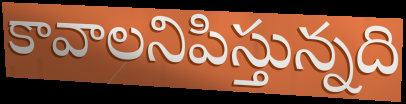
కావాలనిపిస్తున్నది